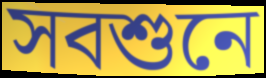
সবশুনে